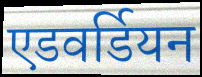
एडवर्डियन